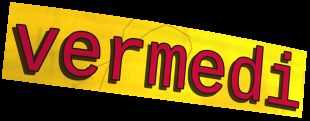
vermedi